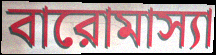
বারোমাস্যা